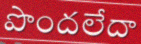
పొందలేదా